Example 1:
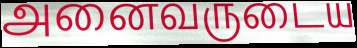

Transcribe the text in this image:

அனைவருடைய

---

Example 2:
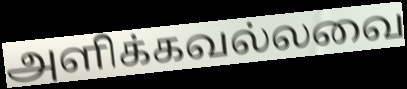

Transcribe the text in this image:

அளிக்கவல்லவை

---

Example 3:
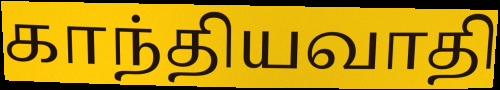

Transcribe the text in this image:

காந்தியவாதி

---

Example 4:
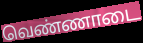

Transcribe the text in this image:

வெண்ணாடை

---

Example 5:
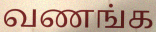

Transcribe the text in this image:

வணங்க